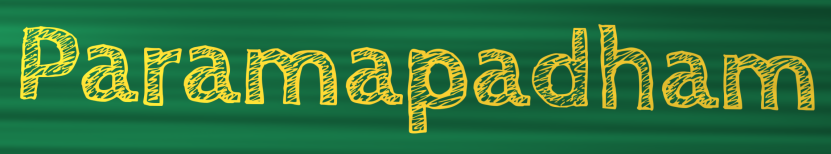
Paramapadham